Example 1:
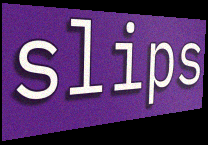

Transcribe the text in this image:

slips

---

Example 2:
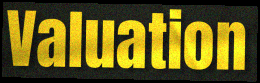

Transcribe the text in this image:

Valuation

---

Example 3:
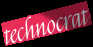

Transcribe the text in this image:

technocrat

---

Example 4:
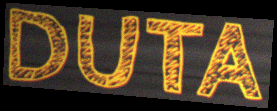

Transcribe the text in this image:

DUTA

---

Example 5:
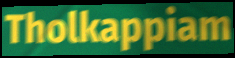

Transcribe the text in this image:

Tholkappiam